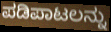
ಪಡಿಪಾಟಲನ್ನು